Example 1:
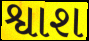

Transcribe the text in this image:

શ્વાશ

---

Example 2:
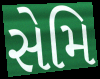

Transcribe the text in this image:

સેમિ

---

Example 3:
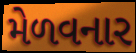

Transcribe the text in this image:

મેળવનાર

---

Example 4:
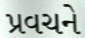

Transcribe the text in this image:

પ્રવચને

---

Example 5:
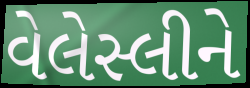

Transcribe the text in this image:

વેલેસ્લીને